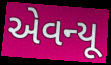
એવન્યૂ